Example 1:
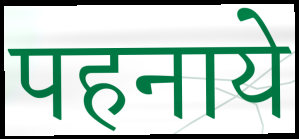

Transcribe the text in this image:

पहनाये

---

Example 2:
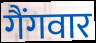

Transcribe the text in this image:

गैंगवार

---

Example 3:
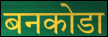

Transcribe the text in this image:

बनकोडा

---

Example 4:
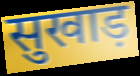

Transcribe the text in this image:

सुखाड़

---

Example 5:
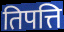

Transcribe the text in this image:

तिपत्ति